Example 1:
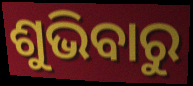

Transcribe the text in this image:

ଶୁଭିବାରୁ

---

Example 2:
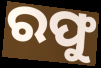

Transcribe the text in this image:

ରଫୁ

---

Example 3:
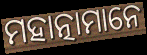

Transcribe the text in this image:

ମହାତ୍ନାମାନେ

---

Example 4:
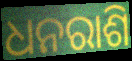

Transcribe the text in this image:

ଧନରାଶି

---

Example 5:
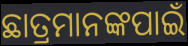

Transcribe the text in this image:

ଛାତ୍ରମାନଙ୍କପାଇଁ